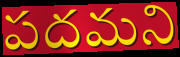
పదమని